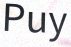
Puy